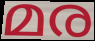
മര